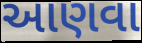
આણવા